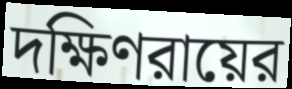
দক্ষিণরায়ের